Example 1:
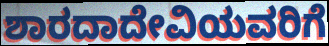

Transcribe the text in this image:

ಶಾರದಾದೇವಿಯವರಿಗೆ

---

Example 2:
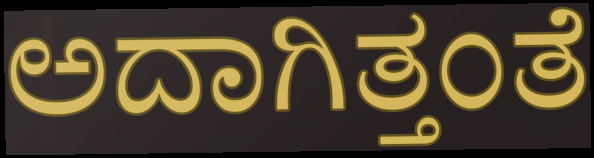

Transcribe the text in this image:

ಅದಾಗಿತ್ತಂತೆ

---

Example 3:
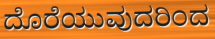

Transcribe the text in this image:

ದೊರೆಯುವುದರಿಂದ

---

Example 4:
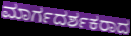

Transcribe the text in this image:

ಮಾರ್ಗದರ್ಶಕರಾದ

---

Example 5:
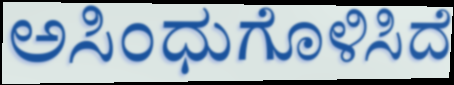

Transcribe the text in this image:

ಅಸಿಂಧುಗೊಳಿಸಿದೆ